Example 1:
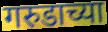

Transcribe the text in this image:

गरुडाच्या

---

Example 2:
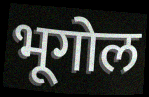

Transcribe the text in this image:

भूगोल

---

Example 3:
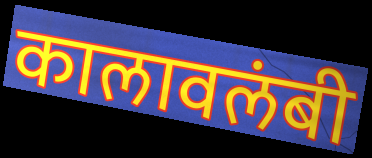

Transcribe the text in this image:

कालावलंबी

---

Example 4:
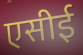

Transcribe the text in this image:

एसीई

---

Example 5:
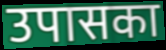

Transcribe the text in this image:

उपासका